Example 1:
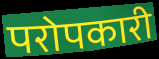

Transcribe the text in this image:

परोपकारी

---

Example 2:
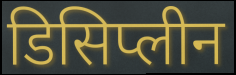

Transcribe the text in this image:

डिसिप्लीन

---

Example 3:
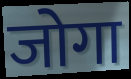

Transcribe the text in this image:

जोगा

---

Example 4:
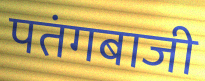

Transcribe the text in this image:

पतंगबाजी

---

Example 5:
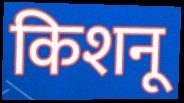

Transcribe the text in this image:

किशनू